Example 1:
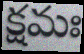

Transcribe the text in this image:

క్షమః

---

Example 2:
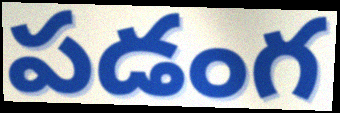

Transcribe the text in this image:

పడంగ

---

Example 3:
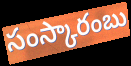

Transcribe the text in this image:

సంస్కారంబు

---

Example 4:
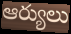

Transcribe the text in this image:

ఆర్యులు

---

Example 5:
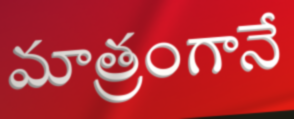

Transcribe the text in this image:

మాత్రంగానే